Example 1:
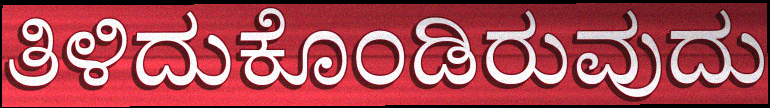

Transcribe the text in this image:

ತಿಳಿದುಕೊಂಡಿರುವುದು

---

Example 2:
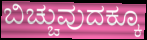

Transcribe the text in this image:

ಬಿಚ್ಚುವುದಕ್ಕೂ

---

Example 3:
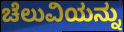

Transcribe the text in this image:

ಚೆಲುವಿಯನ್ನು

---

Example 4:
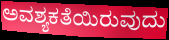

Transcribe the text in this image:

ಅವಶ್ಯಕತೆಯಿರುವುದು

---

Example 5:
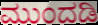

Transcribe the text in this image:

ಮುಂದಡಿ